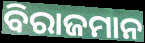
ବିରାଜମାନ